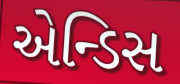
એન્ડિસ